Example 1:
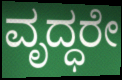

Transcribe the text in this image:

ವೃದ್ಧರೇ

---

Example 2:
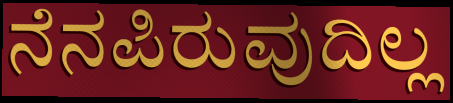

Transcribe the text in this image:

ನೆನಪಿರುವುದಿಲ್ಲ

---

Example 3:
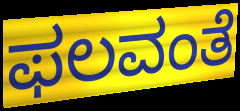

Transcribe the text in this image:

ಫಲವಂತೆ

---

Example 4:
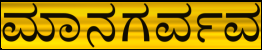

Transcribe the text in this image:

ಮಾನಗರ್ವವ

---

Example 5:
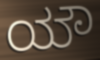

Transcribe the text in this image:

ಯೌ